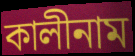
কালীনাম